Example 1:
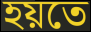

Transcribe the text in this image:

হয়তে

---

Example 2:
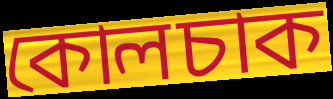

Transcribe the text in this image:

কোলচাক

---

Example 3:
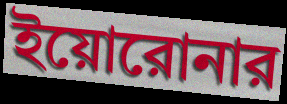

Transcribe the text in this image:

ইয়োরোনার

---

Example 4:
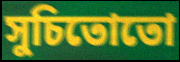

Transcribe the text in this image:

সুচিতোতো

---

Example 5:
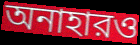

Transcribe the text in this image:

অনাহারও